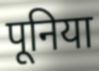
पूनिया